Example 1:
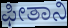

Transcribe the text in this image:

ಫೀತಾನಿ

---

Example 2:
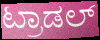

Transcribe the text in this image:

ಟ್ರಾಡಲ್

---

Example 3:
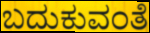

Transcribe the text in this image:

ಬದುಕುವಂತೆ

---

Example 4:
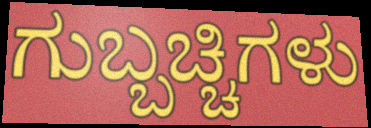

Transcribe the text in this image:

ಗುಬ್ಬಚ್ಚಿಗಳು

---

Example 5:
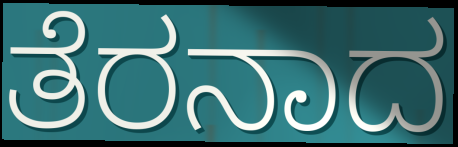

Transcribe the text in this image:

ತೆರನಾದ